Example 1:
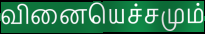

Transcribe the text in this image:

வினையெச்சமும்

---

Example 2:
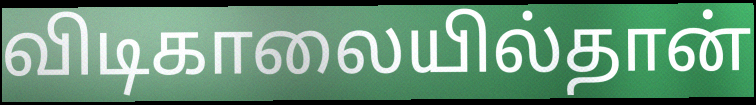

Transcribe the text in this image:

விடிகாலையில்தான்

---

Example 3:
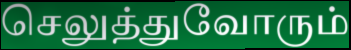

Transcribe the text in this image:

செலுத்துவோரும்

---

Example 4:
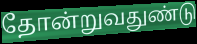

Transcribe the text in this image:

தோன்றுவதுண்டு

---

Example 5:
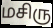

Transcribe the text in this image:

மசிரு